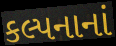
કલ્પનાનાં